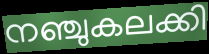
നഞ്ചുകലക്കി